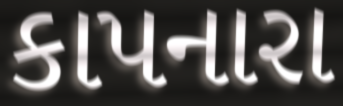
કાપનારા